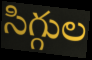
సిగ్గుల